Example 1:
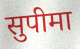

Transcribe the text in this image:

सुपीमा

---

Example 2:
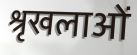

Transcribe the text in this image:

श्रृखलाओं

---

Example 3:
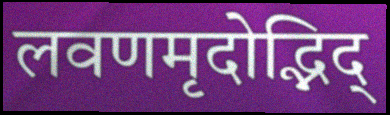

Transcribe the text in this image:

लवणमृदोद्भिद्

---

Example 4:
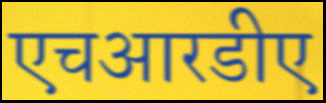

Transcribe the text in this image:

एचआरडीए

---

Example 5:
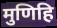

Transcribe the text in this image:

मुणिहि